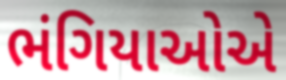
ભંગિયાઓએ